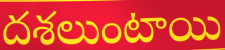
దశలుంటాయి